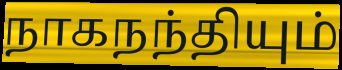
நாகநந்தியும்